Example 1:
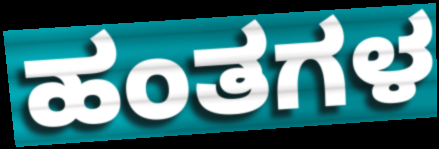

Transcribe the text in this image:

ಹಂತಗಳ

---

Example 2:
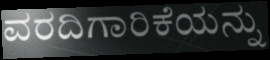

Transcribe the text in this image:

ವರದಿಗಾರಿಕೆಯನ್ನು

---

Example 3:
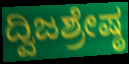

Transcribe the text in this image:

ದ್ವಿಜಶ್ರೇಷ್ಠ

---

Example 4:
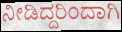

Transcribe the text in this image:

ನೀಡಿದ್ದರಿಂದಾಗಿ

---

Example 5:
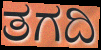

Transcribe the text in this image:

ತಗದಿ